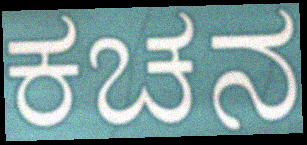
ಕಚನ